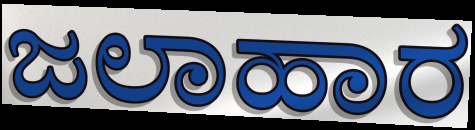
ಜಲಾಹಾರ